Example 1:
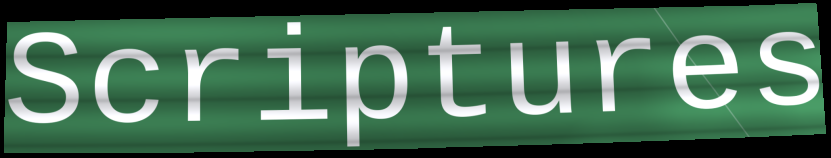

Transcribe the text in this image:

Scriptures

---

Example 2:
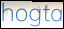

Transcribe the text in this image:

hogta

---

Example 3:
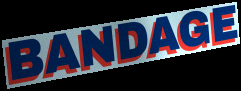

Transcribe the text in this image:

BANDAGE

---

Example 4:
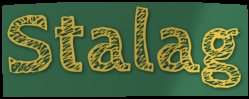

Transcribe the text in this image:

Stalag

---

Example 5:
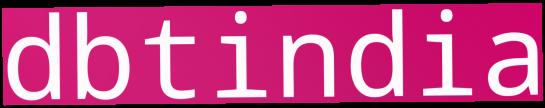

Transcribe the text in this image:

dbtindia